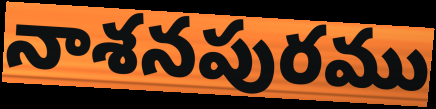
నాశనపురము